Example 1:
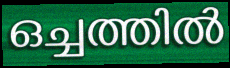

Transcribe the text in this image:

ഒച്ചത്തിൽ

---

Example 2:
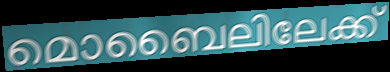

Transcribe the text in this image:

മൊബൈലിലേക്ക്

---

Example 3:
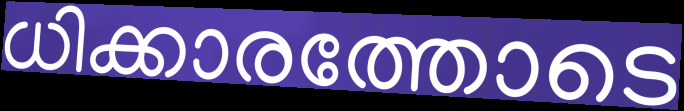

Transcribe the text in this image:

ധിക്കാരത്തോടെ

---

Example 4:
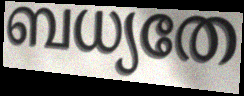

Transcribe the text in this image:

ബധ്യതേ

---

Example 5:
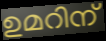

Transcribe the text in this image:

ഉമറിന്